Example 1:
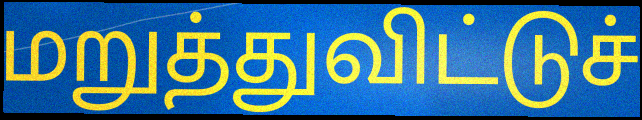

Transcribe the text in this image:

மறுத்துவிட்டுச்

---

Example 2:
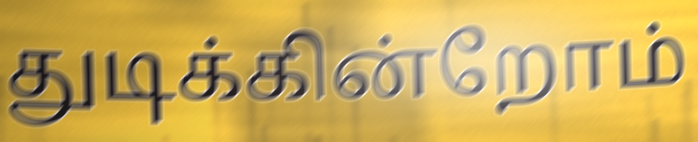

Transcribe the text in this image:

துடிக்கின்றோம்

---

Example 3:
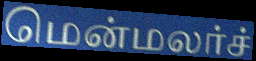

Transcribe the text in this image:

மென்மலர்ச்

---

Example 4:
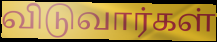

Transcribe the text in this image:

விடுவார்கள்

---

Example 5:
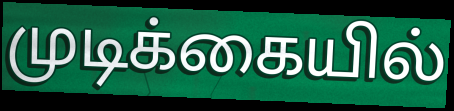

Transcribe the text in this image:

முடிக்கையில்